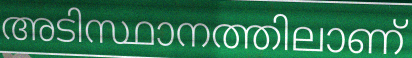
അടിസ്ഥാനത്തിലാണ്